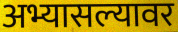
अभ्यासल्यावर